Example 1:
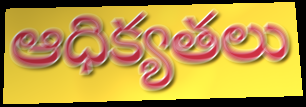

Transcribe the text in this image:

ఆధిక్యతలు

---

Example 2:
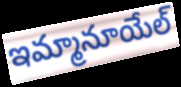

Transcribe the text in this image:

ఇమ్మానూయేల్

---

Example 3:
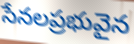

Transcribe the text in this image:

సేనలప్రభువైన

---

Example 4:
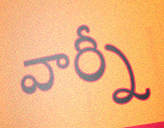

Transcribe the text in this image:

వార్నీ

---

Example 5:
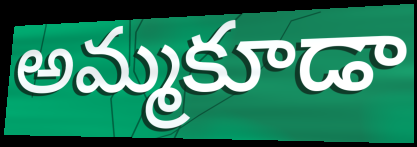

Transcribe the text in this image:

అమ్మకూడా